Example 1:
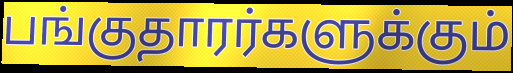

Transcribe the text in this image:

பங்குதாரர்களுக்கும்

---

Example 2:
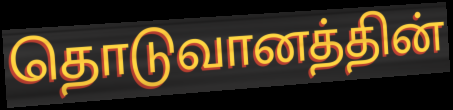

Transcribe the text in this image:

தொடுவானத்தின்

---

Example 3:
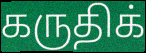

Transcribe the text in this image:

கருதிக்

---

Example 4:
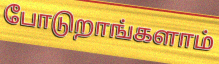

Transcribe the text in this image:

போடுறாங்களாம்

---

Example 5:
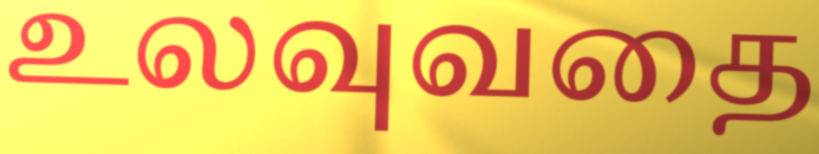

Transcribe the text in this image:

உலவுவதை